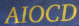
AIOCD